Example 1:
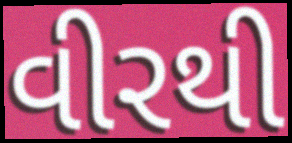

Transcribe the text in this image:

વીરથી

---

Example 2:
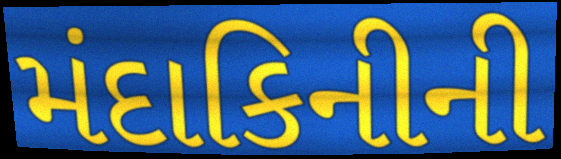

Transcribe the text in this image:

મંદાકિનીની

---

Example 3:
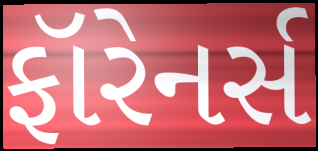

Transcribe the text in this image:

ફૉરેનર્સ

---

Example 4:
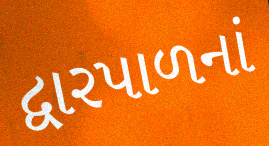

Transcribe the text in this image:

દ્વારપાળનાં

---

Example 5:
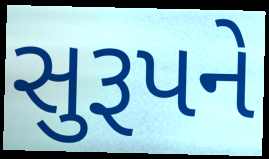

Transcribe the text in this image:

સુરૂપને